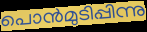
പൊൻമുടിപ്പിന്നു